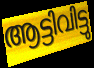
ആട്ടിവിട്ടു